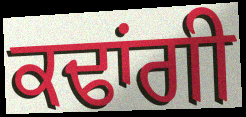
ਕਢਾਂਗੀ